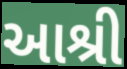
આશ્રી